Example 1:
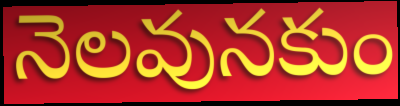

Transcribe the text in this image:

నెలవునకుం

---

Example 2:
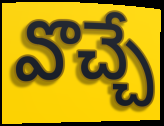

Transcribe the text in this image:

వొచ్చే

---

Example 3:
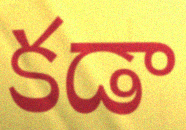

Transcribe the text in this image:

కడా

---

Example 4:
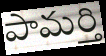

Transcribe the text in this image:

పామర్తి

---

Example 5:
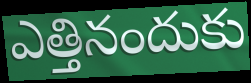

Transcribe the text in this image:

ఎత్తినందుకు